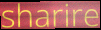
sharire